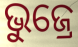
ଭୁଜ୍ରେ